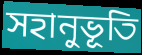
সহানুভূতি